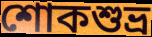
শোকশুভ্র